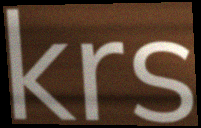
krs